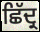
ਛਿੱਦ੍ਰ